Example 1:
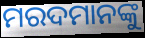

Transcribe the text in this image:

ମରଦମାନଙ୍କୁ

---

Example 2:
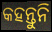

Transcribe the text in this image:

କହନ୍ତୁନି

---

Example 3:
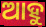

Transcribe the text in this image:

ଆହୁ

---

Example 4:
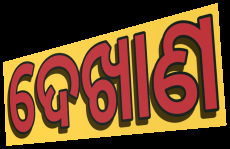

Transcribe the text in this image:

ଦେଖାଣ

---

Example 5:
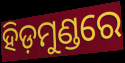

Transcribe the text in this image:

ହିଡ଼ମୁଣ୍ଡରେ